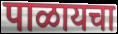
पाळायचा